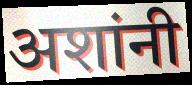
अशांनी